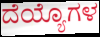
ದೆಯ್ಯೊಗಳ